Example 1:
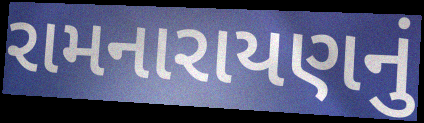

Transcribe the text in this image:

રામનારાયણનું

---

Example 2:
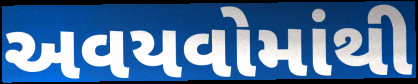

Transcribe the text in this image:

અવયવોમાંથી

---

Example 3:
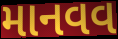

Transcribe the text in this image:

માનવવ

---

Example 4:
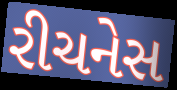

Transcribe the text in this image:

રીચનેસ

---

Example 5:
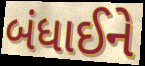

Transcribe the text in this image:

બંધાઈને